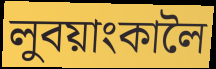
লুবয়াংকালৈ